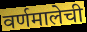
वर्णमालेची